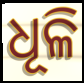
ଧୂଳି